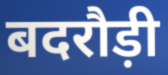
बदरौड़ी